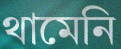
থামেনি